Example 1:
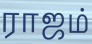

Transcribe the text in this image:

ராஜம்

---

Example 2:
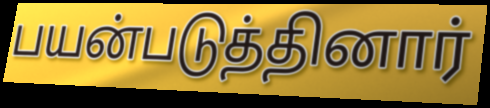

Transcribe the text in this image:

பயன்படுத்தினார்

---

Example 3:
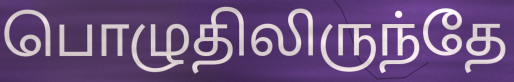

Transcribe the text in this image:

பொழுதிலிருந்தே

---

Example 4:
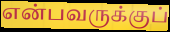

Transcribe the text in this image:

என்பவருக்குப்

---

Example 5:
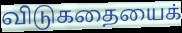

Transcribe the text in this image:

விடுகதையைக்